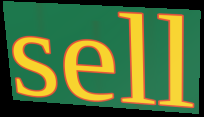
sell